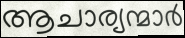
ആചാര്യന്മാർ